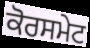
ਕੋਰਸਮੇਟ